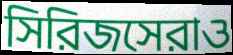
সিরিজসেরাও